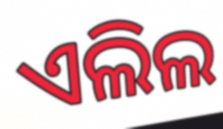
ଏଲିଲ